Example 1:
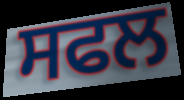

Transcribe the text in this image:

ਸਫਲ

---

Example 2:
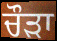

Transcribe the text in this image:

ਚੌੜਾ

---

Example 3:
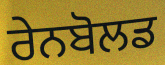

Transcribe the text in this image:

ਰੇਨਬੋਲਡ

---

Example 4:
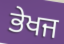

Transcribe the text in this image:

ਭੇਖਜ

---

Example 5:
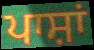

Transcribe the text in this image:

ਪਾਸ਼ਾਂ